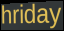
hriday